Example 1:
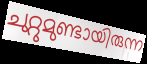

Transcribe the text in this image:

ചുറ്റുമുണ്ടായിരുന്ന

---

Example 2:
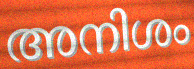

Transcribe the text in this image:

അനിശം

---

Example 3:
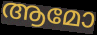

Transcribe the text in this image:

ആമോ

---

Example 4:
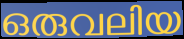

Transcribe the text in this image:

ഒരുവലിയ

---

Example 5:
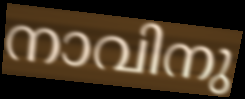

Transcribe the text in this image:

നാവിനു